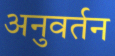
अनुवर्तन